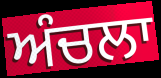
ਅੰਚਲਾ